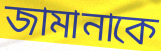
জামানাকে